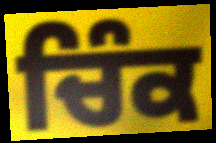
ਚਿੰਕ